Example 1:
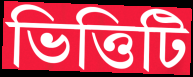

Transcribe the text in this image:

ভিত্তিটি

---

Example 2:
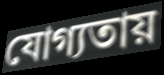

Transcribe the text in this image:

যোগ্যতায়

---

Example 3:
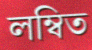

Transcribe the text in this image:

লম্বিত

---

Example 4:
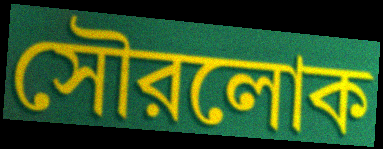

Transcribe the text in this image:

সৌরলোক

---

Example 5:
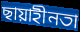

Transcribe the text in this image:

ছায়াহীনতা